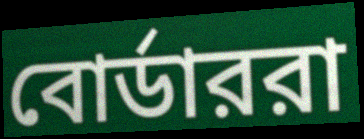
বোর্ডাররা